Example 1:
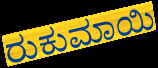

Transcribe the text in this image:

ರುಕುಮಾಯಿ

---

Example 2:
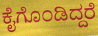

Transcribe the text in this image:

ಕೈಗೊಂಡಿದ್ದರೆ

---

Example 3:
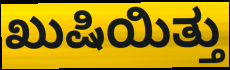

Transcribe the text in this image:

ಖುಷಿಯಿತ್ತು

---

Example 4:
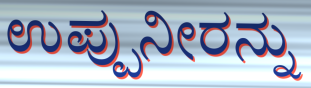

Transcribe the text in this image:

ಉಪ್ಪುನೀರನ್ನು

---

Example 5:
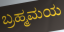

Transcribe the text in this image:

ಬ್ರಹ್ಮಮಯ